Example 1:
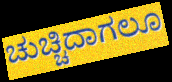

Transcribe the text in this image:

ಚುಚ್ಚಿದಾಗಲೂ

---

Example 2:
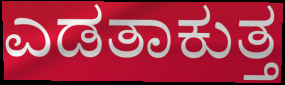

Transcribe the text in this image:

ಎಡತಾಕುತ್ತ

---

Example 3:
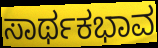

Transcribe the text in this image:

ಸಾರ್ಥಕಭಾವ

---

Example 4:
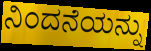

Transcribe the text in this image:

ನಿಂದನೆಯನ್ನು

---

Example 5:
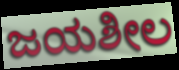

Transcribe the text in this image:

ಜಯಶೀಲ